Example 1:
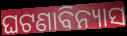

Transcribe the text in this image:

ଘଟଣାବିନ୍ୟାସ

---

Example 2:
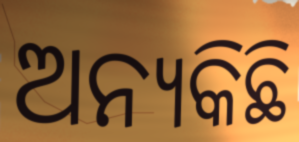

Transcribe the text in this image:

ଅନ୍ୟକିଛି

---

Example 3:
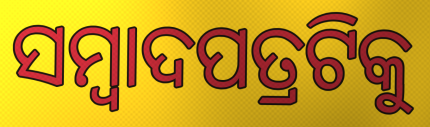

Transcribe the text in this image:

ସମ୍ବାଦପତ୍ରଟିକୁ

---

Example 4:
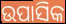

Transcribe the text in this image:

ଉପାସିକ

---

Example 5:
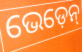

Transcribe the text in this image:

ଭେଡ଼େନ୍